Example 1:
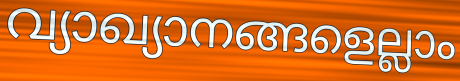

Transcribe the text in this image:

വ്യാഖ്യാനങ്ങളെല്ലാം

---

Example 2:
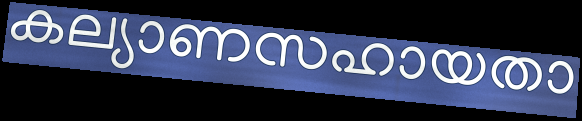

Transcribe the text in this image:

കല്യാണസഹായതാ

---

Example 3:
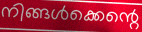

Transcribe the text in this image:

നിങ്ങൾക്കെന്റെ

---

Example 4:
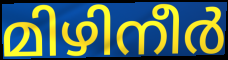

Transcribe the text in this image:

മിഴിനീർ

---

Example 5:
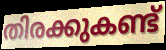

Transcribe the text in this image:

തിരക്കുകണ്ട്